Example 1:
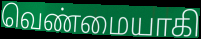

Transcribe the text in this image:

வெண்மையாகி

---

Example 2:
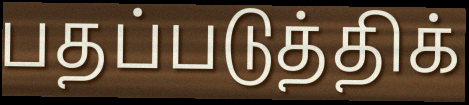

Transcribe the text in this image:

பதப்படுத்திக்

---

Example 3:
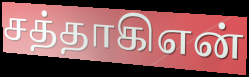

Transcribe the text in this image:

சத்தாகிஎன்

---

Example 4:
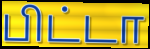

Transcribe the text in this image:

பிட்டா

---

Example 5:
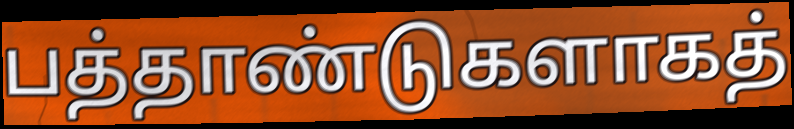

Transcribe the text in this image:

பத்தாண்டுகளாகத்